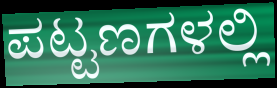
ಪಟ್ಟಣಗಳಲ್ಲಿ